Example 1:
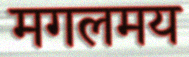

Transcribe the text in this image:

मगलमय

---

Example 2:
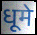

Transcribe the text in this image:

धूमे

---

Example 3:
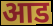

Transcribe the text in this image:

आड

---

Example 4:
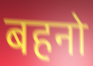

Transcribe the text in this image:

बहनो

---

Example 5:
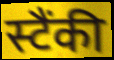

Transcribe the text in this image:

स्टैंकी